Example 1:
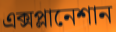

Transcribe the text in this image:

এক্সপ্লানেশান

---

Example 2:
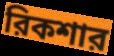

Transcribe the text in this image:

রিকশার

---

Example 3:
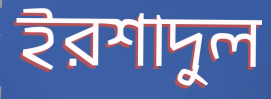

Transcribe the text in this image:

ইরশাদুল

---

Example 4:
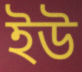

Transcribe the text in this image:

ইউ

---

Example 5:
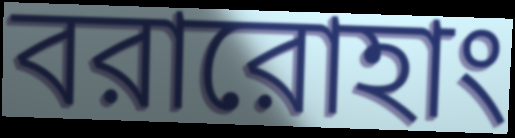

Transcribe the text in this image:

বরারোহাং